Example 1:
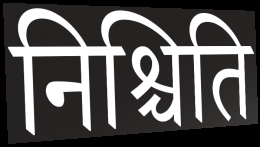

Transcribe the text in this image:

निश्चिति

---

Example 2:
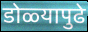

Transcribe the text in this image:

डोळ्यापुढे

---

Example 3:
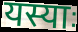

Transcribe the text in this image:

यस्याः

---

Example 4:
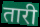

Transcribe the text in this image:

तारी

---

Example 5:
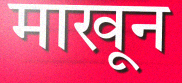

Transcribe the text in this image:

माखून